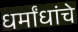
धर्मांधांचे